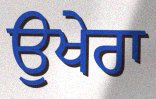
ਉਖੇਰਾ